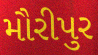
મૌરીપુર